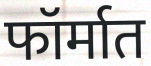
फॉर्मात